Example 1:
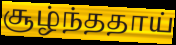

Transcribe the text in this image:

சூழ்ந்ததாய்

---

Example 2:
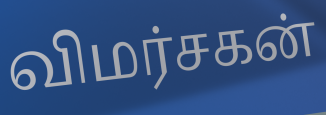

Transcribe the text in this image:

விமர்சகன்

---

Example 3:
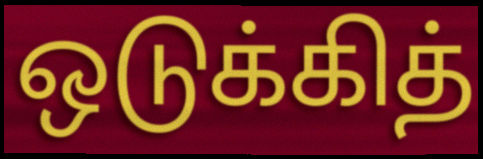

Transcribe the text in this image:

ஒடுக்கித்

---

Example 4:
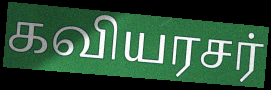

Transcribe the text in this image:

கவியரசர்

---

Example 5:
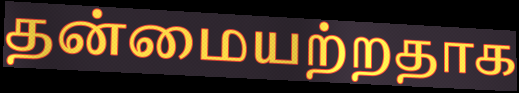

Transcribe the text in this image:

தன்மையற்றதாக